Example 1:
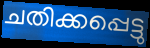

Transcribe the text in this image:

ചതിക്കപ്പെട്ടു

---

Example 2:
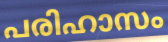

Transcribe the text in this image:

പരിഹാസം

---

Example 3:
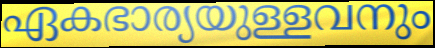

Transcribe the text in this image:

ഏകഭാര്യയുള്ളവനും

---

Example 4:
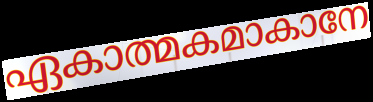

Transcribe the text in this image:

ഏകാത്മകമാകാനേ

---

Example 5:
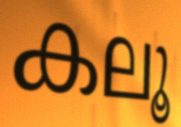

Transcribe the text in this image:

കലൂ